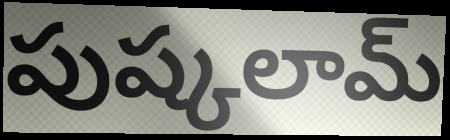
పుష్కలామ్